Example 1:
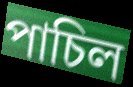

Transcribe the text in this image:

পাচিল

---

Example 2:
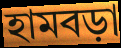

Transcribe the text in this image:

হামবড়া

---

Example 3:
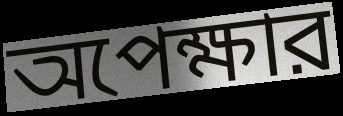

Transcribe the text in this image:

অপেক্ষার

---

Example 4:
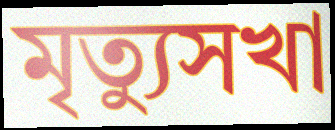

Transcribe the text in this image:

মৃত্যুসখা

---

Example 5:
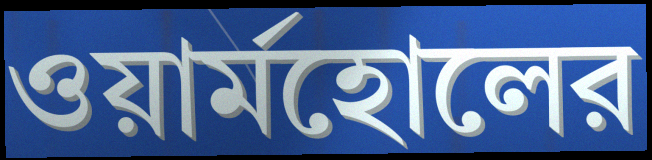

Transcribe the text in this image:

ওয়ার্মহোলের